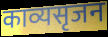
काव्यसृजन